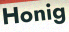
Honig